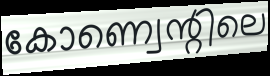
കോണ്വെന്റിലെ